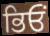
ਭਿਓਂ